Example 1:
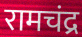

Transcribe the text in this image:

रामचंद्र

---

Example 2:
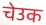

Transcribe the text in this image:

चेउक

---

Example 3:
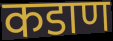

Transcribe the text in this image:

कडाण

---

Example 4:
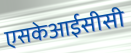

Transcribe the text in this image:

एसकेआईसीसी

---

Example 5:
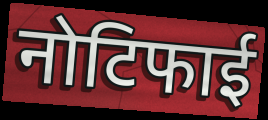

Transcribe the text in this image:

नोटिफाई